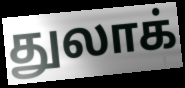
துலாக்